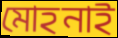
মোহনাই